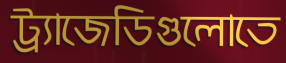
ট্র্যাজেডিগুলোতে